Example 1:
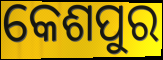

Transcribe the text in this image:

କେଶପୁର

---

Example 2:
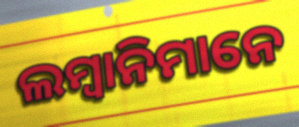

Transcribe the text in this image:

ଲମ୍ବାନିମାନେ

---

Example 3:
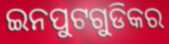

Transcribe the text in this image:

ଇନପୁଟଗୁଡିକର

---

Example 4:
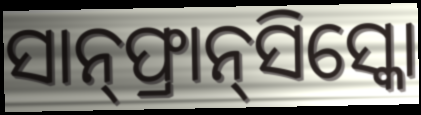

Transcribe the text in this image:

ସାନ୍‌ଫ୍ରାନ୍‌ସିସ୍କୋ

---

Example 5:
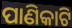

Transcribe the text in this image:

ପାଣିକାଟି